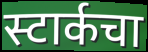
स्टार्कचा